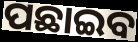
ପଛାଇବ